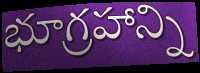
భూగ్రహాన్ని